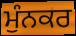
ਮੁੰਨਕਰ